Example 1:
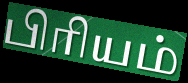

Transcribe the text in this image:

பிரியம்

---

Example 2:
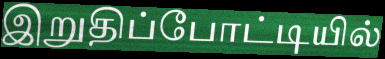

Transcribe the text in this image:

இறுதிப்போட்டியில்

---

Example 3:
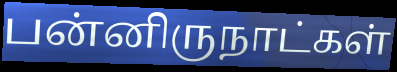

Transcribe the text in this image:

பன்னிருநாட்கள்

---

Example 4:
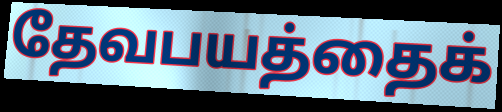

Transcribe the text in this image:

தேவபயத்தைக்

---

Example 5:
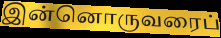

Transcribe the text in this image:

இன்னொருவரைப்